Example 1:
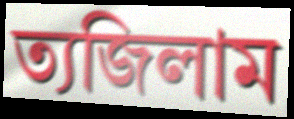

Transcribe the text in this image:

ত্যজিলাম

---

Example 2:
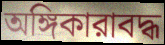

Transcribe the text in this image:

অঙ্গিকারাবদ্ধ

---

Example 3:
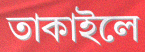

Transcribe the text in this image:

তাকাইলে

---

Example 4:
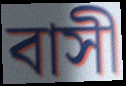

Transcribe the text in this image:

বাসী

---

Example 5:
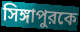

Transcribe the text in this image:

সিঙ্গাপুরকে